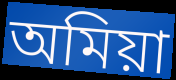
অমিয়া